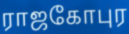
ராஜகோபுர